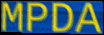
MPDA